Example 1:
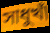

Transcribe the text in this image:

সাধুখাঁ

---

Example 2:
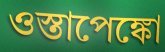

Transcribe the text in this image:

ওস্তাপেঙ্কো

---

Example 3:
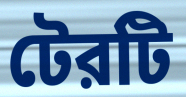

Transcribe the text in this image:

টেরটি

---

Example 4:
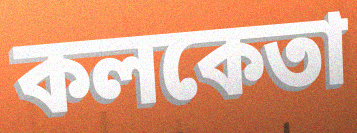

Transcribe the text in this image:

কলকেতা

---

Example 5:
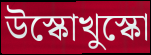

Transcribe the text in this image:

উস্কোখুস্কো